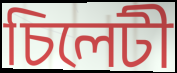
চিলেটী